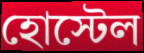
হোস্টেল